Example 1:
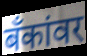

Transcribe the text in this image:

बँकांवर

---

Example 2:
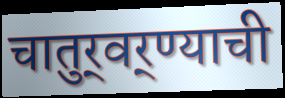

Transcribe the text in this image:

चातुर्वर्ण्याची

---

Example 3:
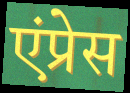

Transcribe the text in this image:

एंप्रेस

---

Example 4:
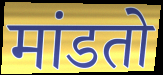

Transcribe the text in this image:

मांडतो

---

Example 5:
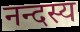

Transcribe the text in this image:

नन्दस्य